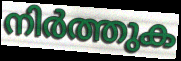
നിർത്തുക